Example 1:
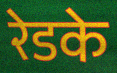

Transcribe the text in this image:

रेडके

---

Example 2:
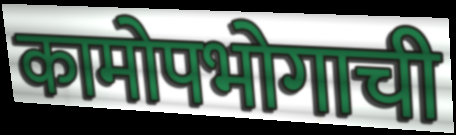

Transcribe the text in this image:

कामोपभोगाची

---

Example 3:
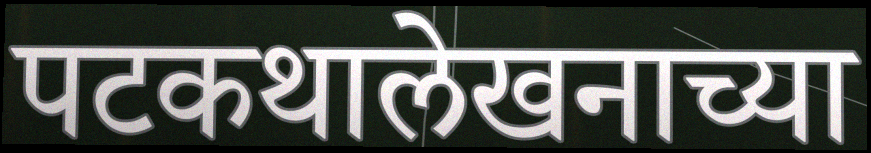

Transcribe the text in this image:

पटकथालेखनाच्या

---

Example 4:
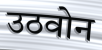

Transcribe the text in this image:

उठवोन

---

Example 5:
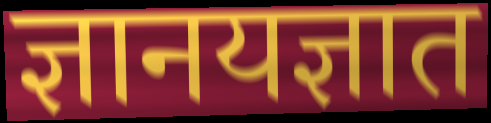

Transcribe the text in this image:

ज्ञानयज्ञात